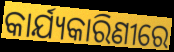
କାର୍ଯ୍ୟକାରିଣୀରେ